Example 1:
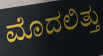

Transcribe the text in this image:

ಮೊದಲಿತ್ತು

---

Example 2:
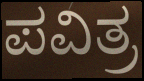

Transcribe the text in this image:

ಪವಿತ್ರ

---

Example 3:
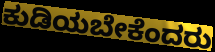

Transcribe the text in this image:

ಕುಡಿಯಬೇಕೆಂದರು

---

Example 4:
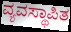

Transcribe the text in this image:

ವ್ಯವಸ್ಥಾಪಿತ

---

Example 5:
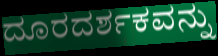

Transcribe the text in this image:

ದೂರದರ್ಶಕವನ್ನು